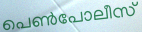
പെൺപോലീസ്